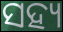
ସହ୍ୟ